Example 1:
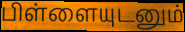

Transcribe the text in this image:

பிள்ளையுடனும்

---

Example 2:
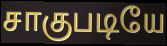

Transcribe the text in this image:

சாகுபடியே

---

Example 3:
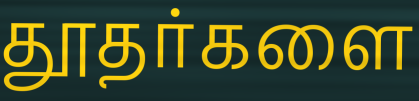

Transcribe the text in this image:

தூதர்களை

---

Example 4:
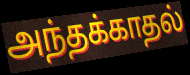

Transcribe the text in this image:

அந்தக்காதல்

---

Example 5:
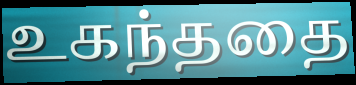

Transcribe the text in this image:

உகந்ததை